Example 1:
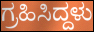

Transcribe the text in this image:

ಗ್ರಹಿಸಿದ್ದಳು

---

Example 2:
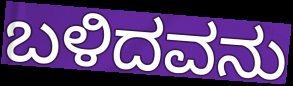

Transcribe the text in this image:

ಬಳಿದವನು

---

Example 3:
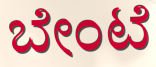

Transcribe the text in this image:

ಬೇಂಟೆ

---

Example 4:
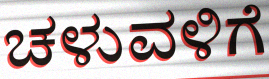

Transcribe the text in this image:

ಚಳುವಳಿಗೆ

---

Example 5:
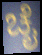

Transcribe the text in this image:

ಚೈ